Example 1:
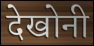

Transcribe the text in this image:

देखोनी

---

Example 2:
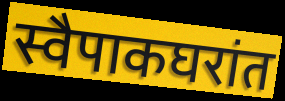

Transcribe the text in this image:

स्वैपाकघरांत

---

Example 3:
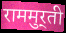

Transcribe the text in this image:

राममुर्ती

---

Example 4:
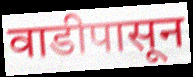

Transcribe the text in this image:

वाडीपासून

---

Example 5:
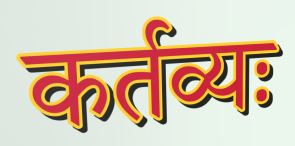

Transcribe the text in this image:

कर्तव्यः